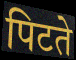
पिटते